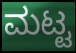
ಮಟ್ಟ